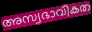
അസ്വഭാവികത